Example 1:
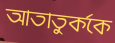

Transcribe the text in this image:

আতাতুর্ককে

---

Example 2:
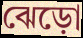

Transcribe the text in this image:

ঝেড়ো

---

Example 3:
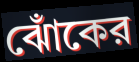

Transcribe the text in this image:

ঝোঁকের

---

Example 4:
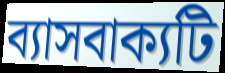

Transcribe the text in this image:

ব্যাসবাক্যটি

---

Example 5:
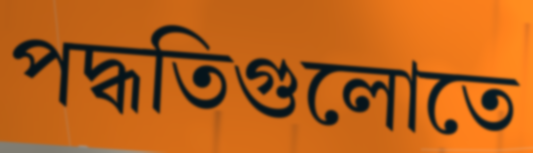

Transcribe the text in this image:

পদ্ধতিগুলোতে